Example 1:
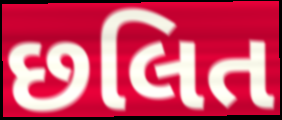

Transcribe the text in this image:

છલિત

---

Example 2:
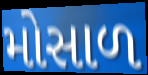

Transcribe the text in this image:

મોસાળ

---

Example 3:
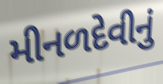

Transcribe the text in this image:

મીનળદેવીનું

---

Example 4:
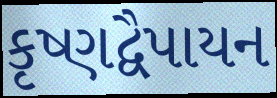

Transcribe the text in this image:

કૃષ્ણદ્વૈપાયન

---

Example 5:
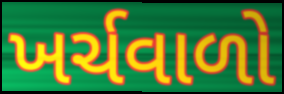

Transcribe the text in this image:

ખર્ચવાળો